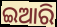
ଇଆରି